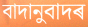
বাদানুবাদৰ